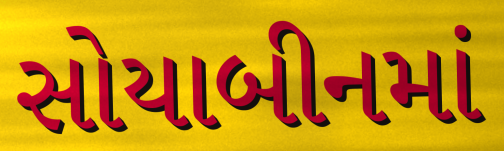
સોયાબીનમાં